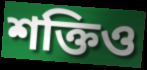
শক্তিও